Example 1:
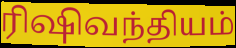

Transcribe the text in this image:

ரிஷிவந்தியம்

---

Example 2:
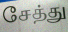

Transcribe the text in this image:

சேத்து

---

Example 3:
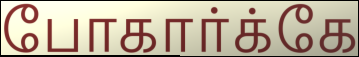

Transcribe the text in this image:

போகார்க்கே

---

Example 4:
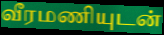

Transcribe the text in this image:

வீரமணியுடன்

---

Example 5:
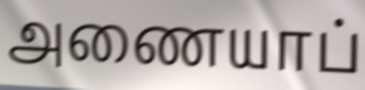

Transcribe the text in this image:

அணையாப்